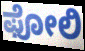
ಫೋಲಿ